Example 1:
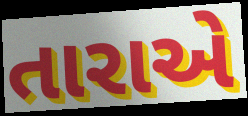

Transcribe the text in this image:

તારાએ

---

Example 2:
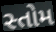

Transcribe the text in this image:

સ્તોમ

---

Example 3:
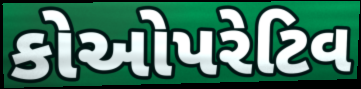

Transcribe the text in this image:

કોઓપરેટિવ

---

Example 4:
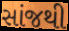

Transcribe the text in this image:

સાંજથી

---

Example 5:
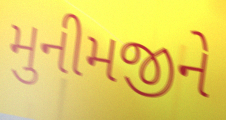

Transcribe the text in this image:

મુનીમજીને